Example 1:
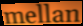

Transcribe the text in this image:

mellan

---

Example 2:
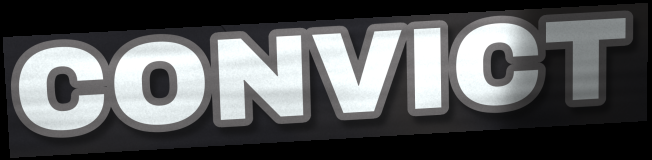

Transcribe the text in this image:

CONVICT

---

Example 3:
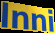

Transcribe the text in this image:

Inni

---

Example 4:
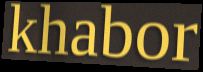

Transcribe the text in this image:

khabor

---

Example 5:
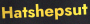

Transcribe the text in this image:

Hatshepsut